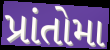
પ્રાંતોમા